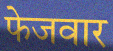
फेजवार